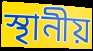
স্থানীয়